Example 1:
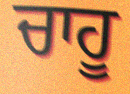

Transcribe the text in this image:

ਚਾਹੂ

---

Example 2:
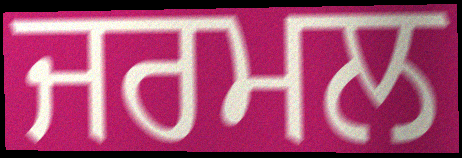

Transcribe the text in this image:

ਜਰਮਲ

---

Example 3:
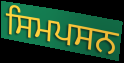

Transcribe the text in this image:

ਸਿਮਪਸਨ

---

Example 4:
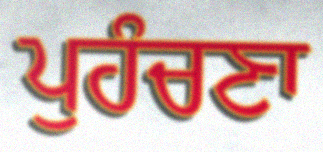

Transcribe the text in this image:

ਪੁਹੰਚਣਾ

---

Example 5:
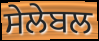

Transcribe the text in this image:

ਸੇਲੇਬਲ